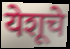
येशूचे